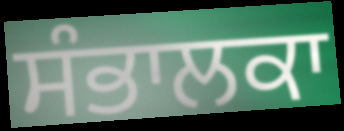
ਸੰਭਾਲਕਾ